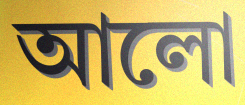
আলো